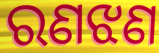
ରଣଝଣ